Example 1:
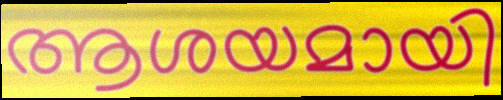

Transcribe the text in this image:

ആശയമായി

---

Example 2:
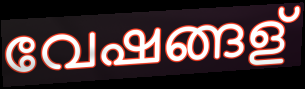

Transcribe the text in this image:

വേഷങ്ങള്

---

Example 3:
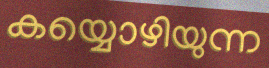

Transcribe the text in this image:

കയ്യൊഴിയുന്ന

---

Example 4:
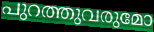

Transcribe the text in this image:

പുറത്തുവരുമോ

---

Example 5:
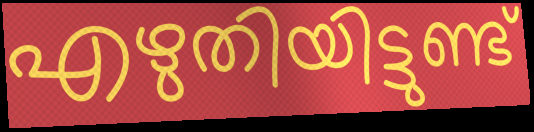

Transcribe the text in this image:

എഴുതിയിട്ടുണ്ട്